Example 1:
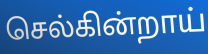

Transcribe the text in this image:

செல்கின்றாய்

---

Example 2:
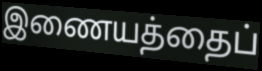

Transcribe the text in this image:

இணையத்தைப்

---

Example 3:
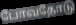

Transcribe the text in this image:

போவதோடு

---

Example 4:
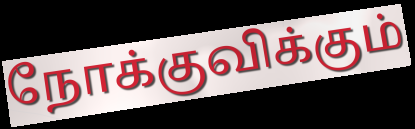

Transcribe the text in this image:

நோக்குவிக்கும்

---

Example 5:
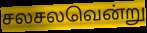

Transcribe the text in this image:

சலசலவென்று